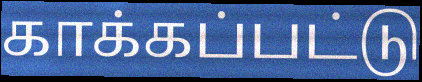
காக்கப்பட்டு